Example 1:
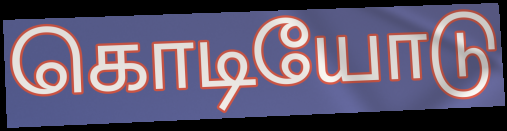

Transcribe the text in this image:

கொடியோடு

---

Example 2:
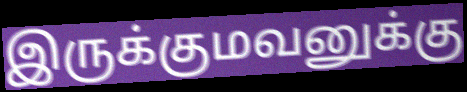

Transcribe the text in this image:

இருக்குமவனுக்கு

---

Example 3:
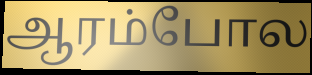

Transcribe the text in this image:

ஆரம்போல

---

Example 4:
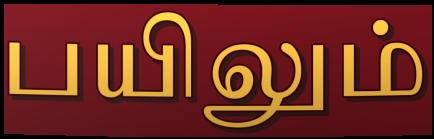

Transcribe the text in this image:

பயிலும்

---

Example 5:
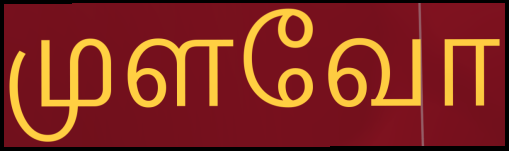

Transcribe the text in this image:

முளவோ